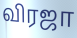
விரஜா